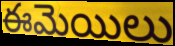
ఈమెయిలు